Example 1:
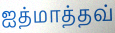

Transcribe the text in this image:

ஐத்மாத்தவ்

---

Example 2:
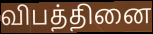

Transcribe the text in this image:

விபத்தினை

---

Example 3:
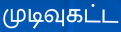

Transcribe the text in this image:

முடிவுகட்ட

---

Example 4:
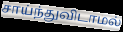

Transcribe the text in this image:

சாய்ந்துவிடாமல்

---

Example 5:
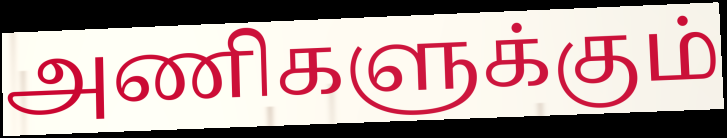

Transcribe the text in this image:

அணிகளுக்கும்